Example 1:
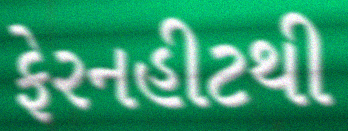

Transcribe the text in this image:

ફેરનહીટથી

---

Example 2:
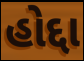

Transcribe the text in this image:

હોદ્દા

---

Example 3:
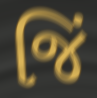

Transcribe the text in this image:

જિં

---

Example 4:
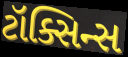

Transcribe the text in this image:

ટૉક્સિન્સ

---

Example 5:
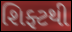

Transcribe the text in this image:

શિફ્ટથી